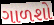
ગાળશો